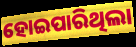
ହୋଇପାରିଥିଲା